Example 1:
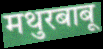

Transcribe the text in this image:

मथुरबाबू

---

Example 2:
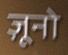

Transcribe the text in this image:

ज़ूनो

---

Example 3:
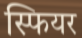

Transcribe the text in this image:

स्फियर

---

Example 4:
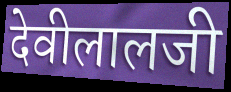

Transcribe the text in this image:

देवीलालजी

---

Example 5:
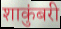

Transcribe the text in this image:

शाकुंबरी